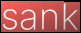
sank